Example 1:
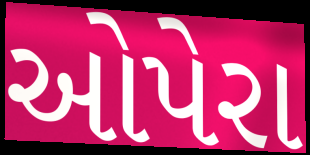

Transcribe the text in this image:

ઓપેરા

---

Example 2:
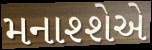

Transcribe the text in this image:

મનાશ્શેએ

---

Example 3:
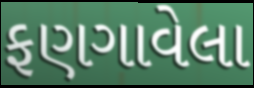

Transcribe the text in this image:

ફણગાવેલા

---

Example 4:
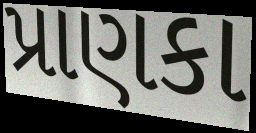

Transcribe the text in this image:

પ્રાણકા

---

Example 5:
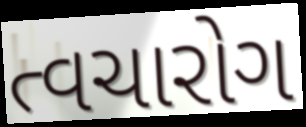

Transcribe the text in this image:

ત્વચારોગ